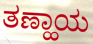
ತಣ್ಹಾಯ